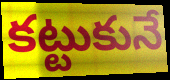
కట్టుకునే